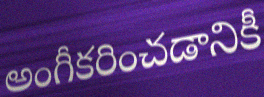
అంగీకరించడానికీ